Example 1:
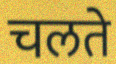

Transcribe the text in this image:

चलते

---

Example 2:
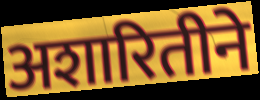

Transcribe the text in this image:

अशारितीने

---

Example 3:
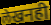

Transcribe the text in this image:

लेखनही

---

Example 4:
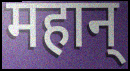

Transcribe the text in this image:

महान्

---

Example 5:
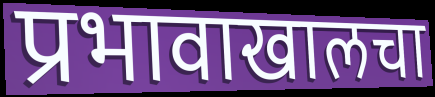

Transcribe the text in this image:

प्रभावाखालचा